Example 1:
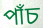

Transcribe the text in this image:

পাঁচ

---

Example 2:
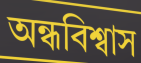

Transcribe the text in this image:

অন্ধবিশ্বাস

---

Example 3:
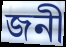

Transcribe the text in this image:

জনী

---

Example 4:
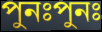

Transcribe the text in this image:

পুনঃপুনঃ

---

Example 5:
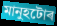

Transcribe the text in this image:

মানুহটোৰ